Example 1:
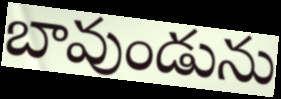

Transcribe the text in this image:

బావుండును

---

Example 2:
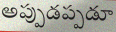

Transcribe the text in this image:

అప్పుడప్పడూ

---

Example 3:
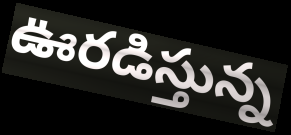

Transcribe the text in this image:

ఊరడిస్తున్న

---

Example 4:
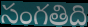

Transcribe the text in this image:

సంగతిది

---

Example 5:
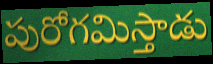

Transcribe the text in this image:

పురోగమిస్తాడు